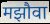
मझौवा